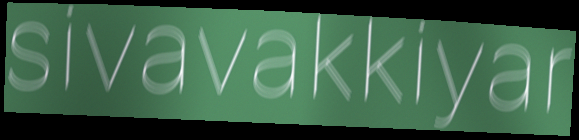
sivavakkiyar